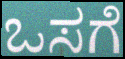
ಒಸಗೆ